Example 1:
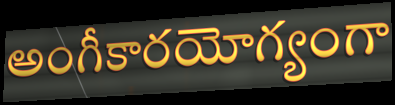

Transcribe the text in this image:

అంగీకారయోగ్యంగా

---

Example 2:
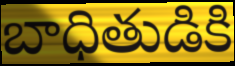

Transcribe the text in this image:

బాధితుడికి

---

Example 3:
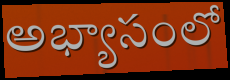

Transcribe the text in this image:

అభ్యాసంలో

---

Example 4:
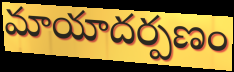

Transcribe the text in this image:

మాయాదర్పణం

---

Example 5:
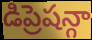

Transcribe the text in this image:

డిప్రెషన్గా